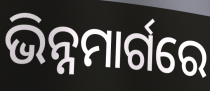
ଭିନ୍ନମାର୍ଗରେ